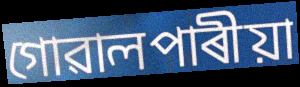
গোৱালপাৰীয়া